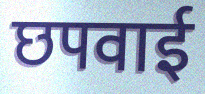
छपवाई